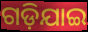
ଗଡ଼ିଯାଇ